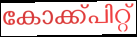
കോക്ക്പിറ്റ്